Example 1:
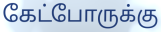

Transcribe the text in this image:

கேட்போருக்கு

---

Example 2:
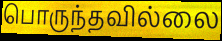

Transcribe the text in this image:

பொருந்தவில்லை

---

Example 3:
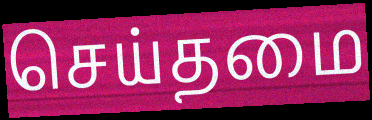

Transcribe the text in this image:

செய்தமை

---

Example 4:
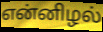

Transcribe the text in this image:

என்னிழல்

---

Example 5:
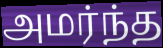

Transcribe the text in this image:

அமர்ந்த